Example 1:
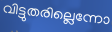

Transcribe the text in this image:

വിട്ടുതരില്ലെന്നോ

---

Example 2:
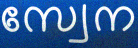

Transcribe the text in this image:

സ്വേന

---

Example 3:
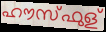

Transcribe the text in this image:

ഹൗസ്ഫുള്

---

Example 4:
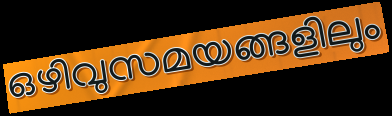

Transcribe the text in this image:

ഒഴിവുസമയങ്ങളിലും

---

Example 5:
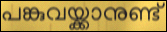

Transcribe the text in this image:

പങ്കുവയ്ക്കാനുണ്ട്